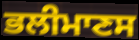
ਭਲੀਮਾਣਸ